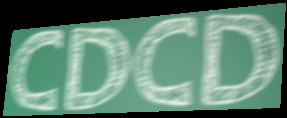
CDCD